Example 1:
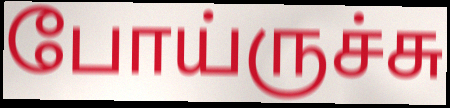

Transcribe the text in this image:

போய்ருச்சு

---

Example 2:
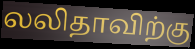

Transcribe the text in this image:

லலிதாவிற்கு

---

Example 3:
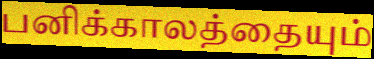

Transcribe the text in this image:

பனிக்காலத்தையும்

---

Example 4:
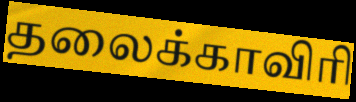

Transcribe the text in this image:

தலைக்காவிரி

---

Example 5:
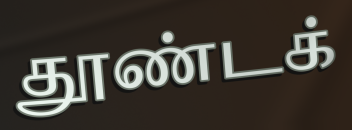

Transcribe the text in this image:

தூண்டக்